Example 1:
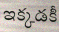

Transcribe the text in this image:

ఇక్కడకీ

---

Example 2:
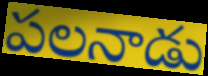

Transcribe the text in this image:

పలనాడు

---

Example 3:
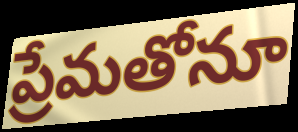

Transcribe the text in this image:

ప్రేమతోనూ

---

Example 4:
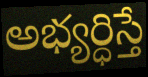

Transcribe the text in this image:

అభ్యర్ధిస్తే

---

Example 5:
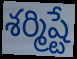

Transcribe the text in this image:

శర్మిష్టే